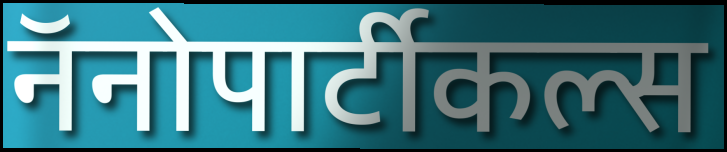
नॅनोपार्टीकल्स